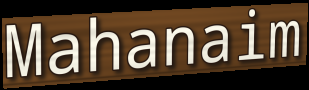
Mahanaim